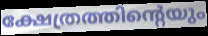
ക്ഷേത്രത്തിന്റെയും